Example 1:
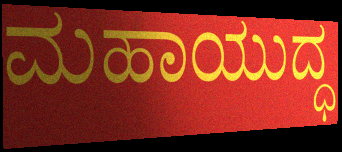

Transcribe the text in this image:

ಮಹಾಯುದ್ಧ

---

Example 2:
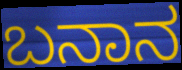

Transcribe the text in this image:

ಬನಾನ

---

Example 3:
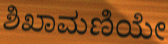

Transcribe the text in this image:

ಶಿಖಾಮಣಿಯೇ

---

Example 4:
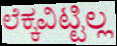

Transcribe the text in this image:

ಲೆಕ್ಕವಿಟ್ಟಿಲ್ಲ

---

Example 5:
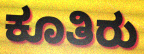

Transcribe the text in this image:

ಕೂತಿರು